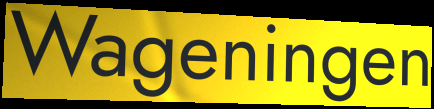
Wageningen